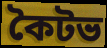
কৈটভ